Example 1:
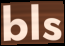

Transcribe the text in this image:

bls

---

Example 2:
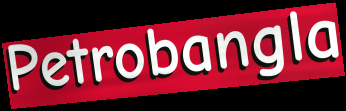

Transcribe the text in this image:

Petrobangla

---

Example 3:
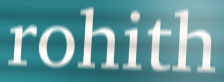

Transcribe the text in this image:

rohith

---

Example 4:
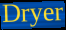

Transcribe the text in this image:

Dryer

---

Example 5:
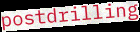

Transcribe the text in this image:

postdrilling